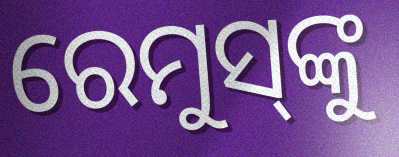
ରେମୁସ୍‌ଙ୍କୁ